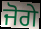
ਜੋਗੇ